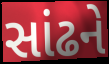
સાંઢને